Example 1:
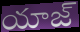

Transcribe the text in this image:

యాజ్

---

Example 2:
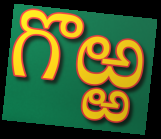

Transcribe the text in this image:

గొఱ్ఱ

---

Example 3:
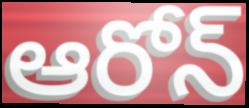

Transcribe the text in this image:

ఆరోన్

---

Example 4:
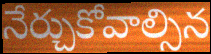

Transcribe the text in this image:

నేర్చుకోవాల్సిన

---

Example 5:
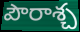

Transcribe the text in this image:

పౌరాశ్చ